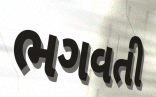
ભગવતી